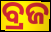
ବ୍ରଜ